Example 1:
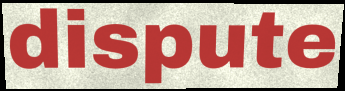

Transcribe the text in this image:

dispute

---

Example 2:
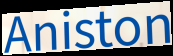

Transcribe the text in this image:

Aniston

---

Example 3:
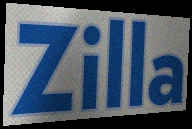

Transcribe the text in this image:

Zilla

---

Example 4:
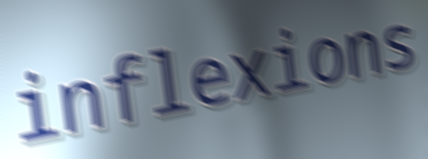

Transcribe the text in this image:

inflexions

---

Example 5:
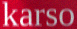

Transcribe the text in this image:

karso